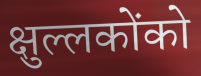
क्षुल्लकोंको